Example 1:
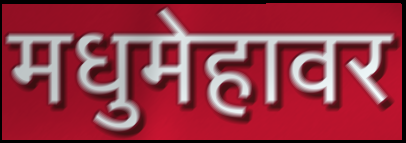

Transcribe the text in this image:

मधुमेहावर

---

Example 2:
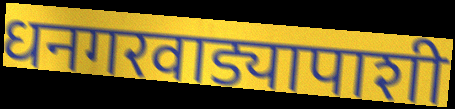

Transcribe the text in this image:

धनगरवाड्यापाशी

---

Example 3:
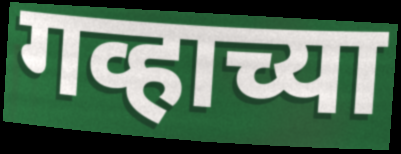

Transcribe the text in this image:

गव्हाच्या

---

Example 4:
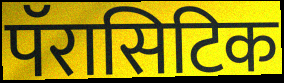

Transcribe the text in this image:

पॅरासिटिक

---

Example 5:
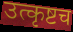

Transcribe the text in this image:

उत्कृष्टच